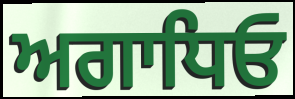
ਅਗਾਧਿਓ